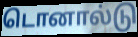
டொனால்டு